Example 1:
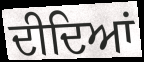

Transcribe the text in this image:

ਦੀਦਿਆਂ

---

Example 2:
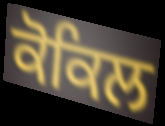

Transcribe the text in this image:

ਕੋਕਿਲ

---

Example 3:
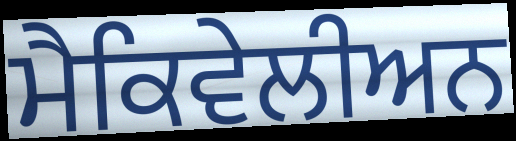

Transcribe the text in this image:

ਮੈਕਿਵੇਲੀਅਨ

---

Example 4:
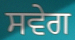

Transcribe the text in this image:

ਸਵੇਗ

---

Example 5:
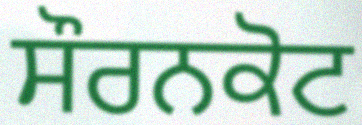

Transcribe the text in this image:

ਸੌਰਨਕੋਟ